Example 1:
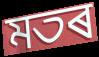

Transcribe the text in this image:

মতৰ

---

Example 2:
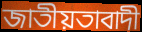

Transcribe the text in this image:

জাতীয়তাবাদী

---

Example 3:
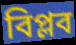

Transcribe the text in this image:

বিপ্লব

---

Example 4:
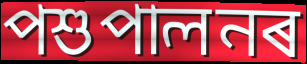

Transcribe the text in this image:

পশুপালনৰ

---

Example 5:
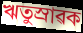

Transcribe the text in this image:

ঋতুস্ৰাৱক